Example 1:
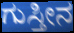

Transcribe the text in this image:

ಗುಸ್ತೀನ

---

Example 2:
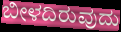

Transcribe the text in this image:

ಬೀಳದಿರುವುದು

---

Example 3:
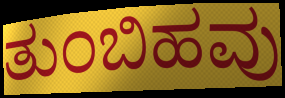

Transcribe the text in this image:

ತುಂಬಿಹವು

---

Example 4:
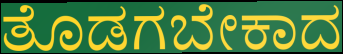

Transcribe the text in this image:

ತೊಡಗಬೇಕಾದ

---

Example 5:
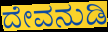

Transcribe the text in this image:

ದೇವನುಡಿ